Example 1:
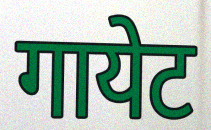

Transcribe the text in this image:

गायेट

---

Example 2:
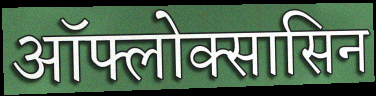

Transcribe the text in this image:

ऑफ्लोक्सासिन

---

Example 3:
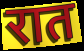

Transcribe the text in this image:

रात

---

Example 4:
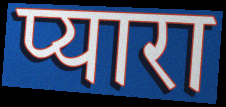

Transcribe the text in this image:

प्यारा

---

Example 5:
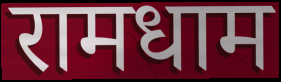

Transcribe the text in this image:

रामधाम